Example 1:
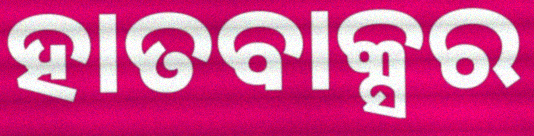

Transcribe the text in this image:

ହାତବାକ୍ସର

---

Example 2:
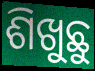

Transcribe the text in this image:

ଶିଖୁଛୁ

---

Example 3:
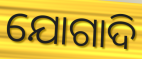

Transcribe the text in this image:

ଯୋଗାଦି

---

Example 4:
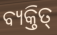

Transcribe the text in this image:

ବ୍ୟକ୍ତିତ୍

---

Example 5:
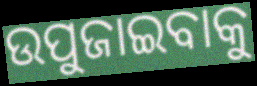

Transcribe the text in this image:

ଉପୁଜାଇବାକୁ